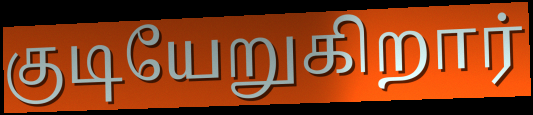
குடியேறுகிறார்